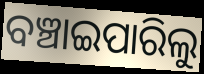
ବଞ୍ଚାଇପାରିଲୁ